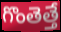
గొంతెత్తే